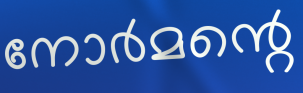
നോർമന്റെ